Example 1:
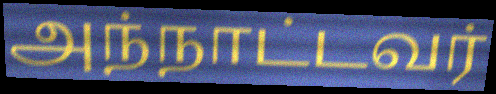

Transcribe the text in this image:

அந்நாட்டவர்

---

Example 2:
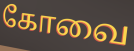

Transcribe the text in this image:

கோவை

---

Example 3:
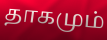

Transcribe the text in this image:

தாகமும்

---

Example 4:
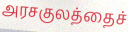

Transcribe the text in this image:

அரசகுலத்தைச்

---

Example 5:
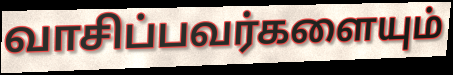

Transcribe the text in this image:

வாசிப்பவர்களையும்